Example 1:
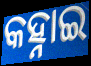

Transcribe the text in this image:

କହ୍ନାଇ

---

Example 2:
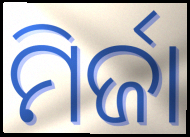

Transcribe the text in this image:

ମିର୍ଜା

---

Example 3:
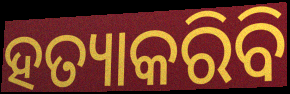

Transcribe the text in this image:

ହତ୍ୟାକରିବି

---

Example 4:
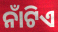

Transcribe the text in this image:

ନାଁଟିଏ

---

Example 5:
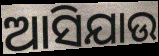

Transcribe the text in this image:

ଆସିଯାଉ